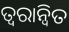
ତ୍ବରାନ୍ବିତ